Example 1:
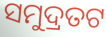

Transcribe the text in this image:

ସମୁଦ୍ରତଟ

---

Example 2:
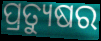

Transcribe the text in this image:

ପ୍ରତ୍ୟୁଷର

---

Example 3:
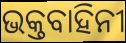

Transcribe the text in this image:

ଭକ୍ତବାହିନୀ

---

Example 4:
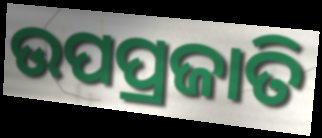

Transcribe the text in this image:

ଉପପ୍ରଜାତି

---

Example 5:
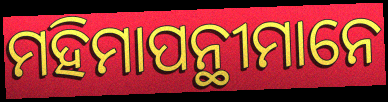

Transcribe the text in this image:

ମହିମାପନ୍ଥୀମାନେ